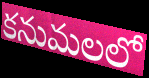
కనుమలలో